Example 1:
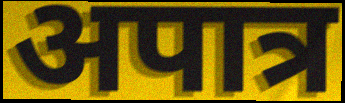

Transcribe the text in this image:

अपात्र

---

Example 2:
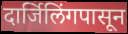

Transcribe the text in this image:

दार्जिलिंगपासून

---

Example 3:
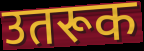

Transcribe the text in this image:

उतरूक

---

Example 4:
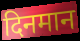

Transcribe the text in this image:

दिनमान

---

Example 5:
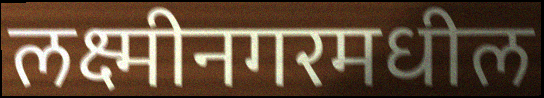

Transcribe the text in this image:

लक्ष्मीनगरमधील